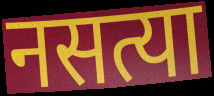
नसत्या